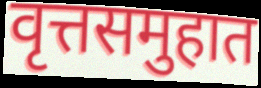
वृत्तसमुहात